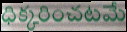
ధిక్కరించటమే